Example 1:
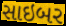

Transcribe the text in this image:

સાઇબર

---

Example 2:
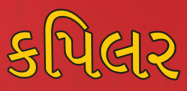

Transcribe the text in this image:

કપિલર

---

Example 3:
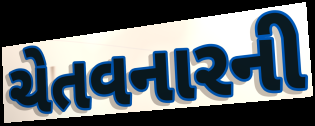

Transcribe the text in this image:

ચેતવનારની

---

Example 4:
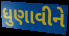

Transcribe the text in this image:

ધુણાવીને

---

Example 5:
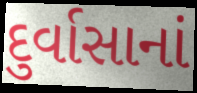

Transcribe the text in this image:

દુર્વાસાનાં